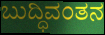
ಬುದ್ಧಿವಂತನ